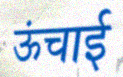
ऊंचाई